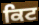
ਕਿਟ